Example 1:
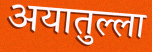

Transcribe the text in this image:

अयातुल्‍ला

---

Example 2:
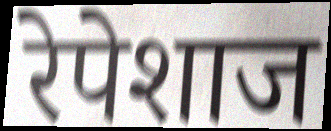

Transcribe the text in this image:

रेपेशाज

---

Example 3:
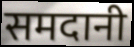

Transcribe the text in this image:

समदानी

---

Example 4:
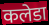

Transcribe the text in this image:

कलेडा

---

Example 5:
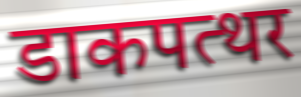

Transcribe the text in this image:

डाकपत्थर